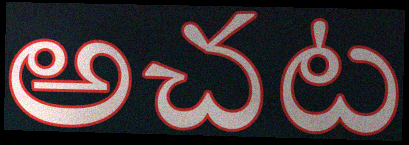
అచట